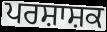
ਪਰਸ਼ਾਸ਼ਕ